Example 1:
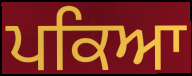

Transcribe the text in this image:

ਪਕਿਆ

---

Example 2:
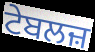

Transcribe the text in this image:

ਟੇਬਲਜ਼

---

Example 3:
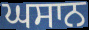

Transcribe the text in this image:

ਘਸਾਨ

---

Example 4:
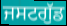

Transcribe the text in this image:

ਜਸਟਗੁੱਡ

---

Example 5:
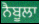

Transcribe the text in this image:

ਨੈਬੂਲਾ